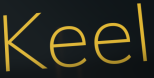
Keel